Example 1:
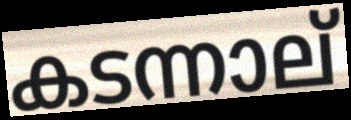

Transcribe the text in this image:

കടന്നാല്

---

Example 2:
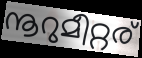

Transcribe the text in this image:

നൂറുമീറ്റര്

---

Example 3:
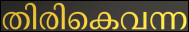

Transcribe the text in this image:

തിരികെവന്ന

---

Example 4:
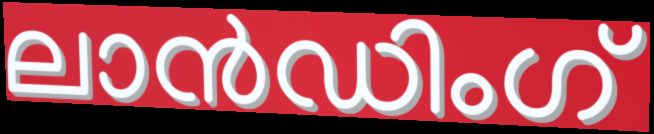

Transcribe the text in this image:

ലാൻഡിംഗ്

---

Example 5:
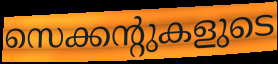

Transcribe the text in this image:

സെക്കന്റുകളുടെ